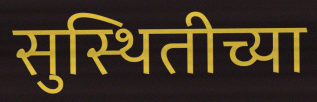
सुस्थितीच्या